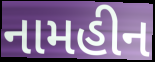
નામહીન